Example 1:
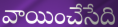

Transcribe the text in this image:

వాయించేసేది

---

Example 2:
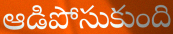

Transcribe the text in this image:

ఆడిపోసుకుంది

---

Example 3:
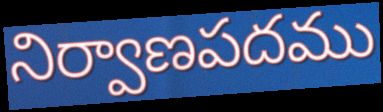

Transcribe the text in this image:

నిర్వాణపదము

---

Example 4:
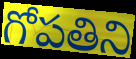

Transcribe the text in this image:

గోపతిని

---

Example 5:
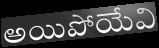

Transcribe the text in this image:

అయిపోయేవి